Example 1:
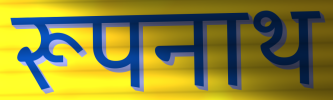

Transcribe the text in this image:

रूपनाथ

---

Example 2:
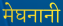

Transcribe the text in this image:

मेघनानी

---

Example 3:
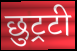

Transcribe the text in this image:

छुट्रटी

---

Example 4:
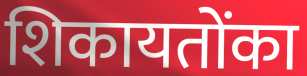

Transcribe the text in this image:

शिकायतोंका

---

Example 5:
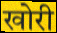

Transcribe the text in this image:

खोरी